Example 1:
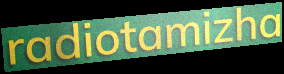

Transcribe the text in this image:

radiotamizha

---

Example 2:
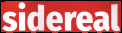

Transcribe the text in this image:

sidereal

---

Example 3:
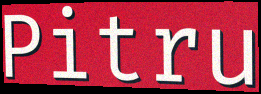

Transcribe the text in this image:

Pitru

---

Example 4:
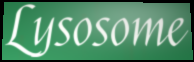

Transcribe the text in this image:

Lysosome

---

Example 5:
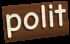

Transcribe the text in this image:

polit